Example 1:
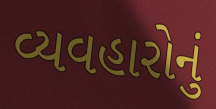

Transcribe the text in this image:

વ્યવહારોનું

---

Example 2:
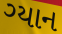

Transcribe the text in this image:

ગ્યાન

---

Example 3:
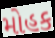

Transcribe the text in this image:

મોહક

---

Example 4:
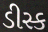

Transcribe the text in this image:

ડીસ્ક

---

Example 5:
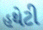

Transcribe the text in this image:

હથેટી